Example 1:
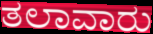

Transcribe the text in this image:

ತಲಾವಾರು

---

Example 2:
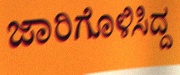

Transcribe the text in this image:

ಜಾರಿಗೊಳಿಸಿದ್ದ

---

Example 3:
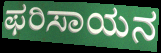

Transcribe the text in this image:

ಫರಿಸಾಯನ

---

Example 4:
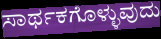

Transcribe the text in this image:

ಸಾರ್ಥಕಗೊಳ್ಳುವುದು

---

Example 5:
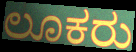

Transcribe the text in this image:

ಲೂಕರು